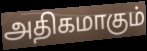
அதிகமாகும்